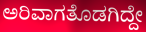
ಅರಿವಾಗತೊಡಗಿದ್ದೇ